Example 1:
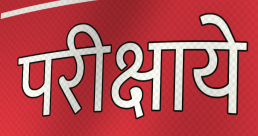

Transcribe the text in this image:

परीक्षाये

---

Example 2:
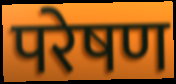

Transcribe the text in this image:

परेषण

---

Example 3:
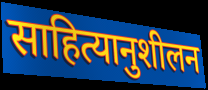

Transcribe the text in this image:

साहित्यानुशीलन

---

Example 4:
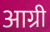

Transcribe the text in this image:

आग्री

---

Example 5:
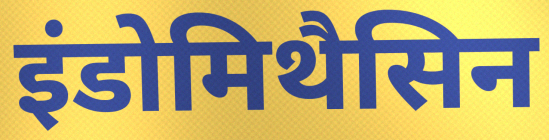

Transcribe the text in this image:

इंडोमिथैसिन